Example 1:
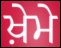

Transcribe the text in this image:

ਖ਼ੇਮੇ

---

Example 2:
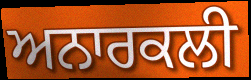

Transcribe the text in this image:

ਅਨਾਰਕਲੀ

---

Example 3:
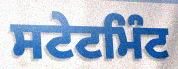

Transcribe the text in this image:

ਸਟੇਟਮਿੰਟ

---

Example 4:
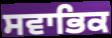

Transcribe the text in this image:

ਸਵਾਭਿਕ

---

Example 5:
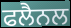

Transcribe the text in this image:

ਫਲੈਨਲ